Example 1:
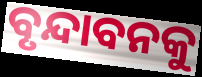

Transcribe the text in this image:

ବୃନ୍ଦାବନକୁ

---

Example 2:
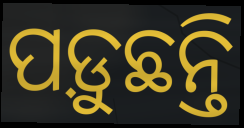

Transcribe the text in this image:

ପଡ଼ୁଛନ୍ତି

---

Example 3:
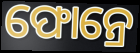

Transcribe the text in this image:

ଫୋନ୍ରେ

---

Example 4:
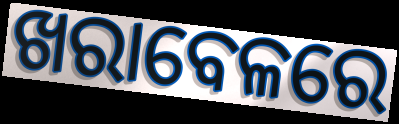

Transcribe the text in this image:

ଖରାବେଳରେ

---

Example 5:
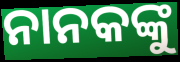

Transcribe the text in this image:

ନାନକଙ୍କୁ